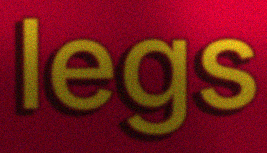
legs